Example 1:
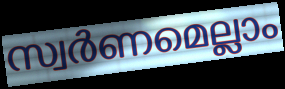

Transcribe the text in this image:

സ്വർണമെല്ലാം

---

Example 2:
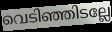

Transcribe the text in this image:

വെടിഞ്ഞിടല്ലേ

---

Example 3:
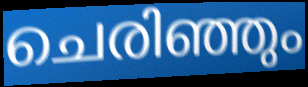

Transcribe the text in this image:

ചെരിഞ്ഞും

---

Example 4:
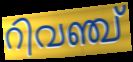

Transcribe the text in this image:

റിവഞ്ച്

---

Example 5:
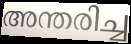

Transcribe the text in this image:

അന്തരിച്ച